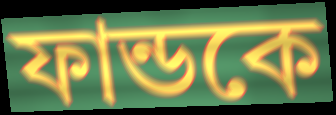
ফান্ডকে